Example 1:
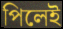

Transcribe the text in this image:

পিলেই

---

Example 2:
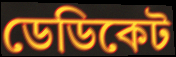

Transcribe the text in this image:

ডেডিকেট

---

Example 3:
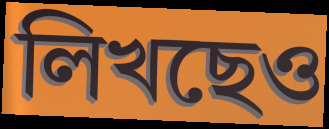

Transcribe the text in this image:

লিখছেও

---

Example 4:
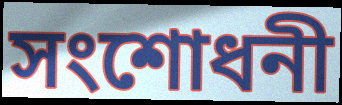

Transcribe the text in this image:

সংশোধনী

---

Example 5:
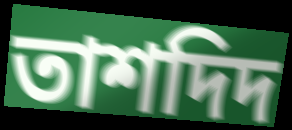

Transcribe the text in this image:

তাশদিদ